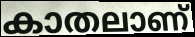
കാതലാണ്